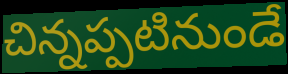
చిన్నప్పటినుండే